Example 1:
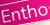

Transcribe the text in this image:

Entho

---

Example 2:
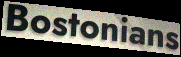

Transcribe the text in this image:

Bostonians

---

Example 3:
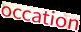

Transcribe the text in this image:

occation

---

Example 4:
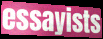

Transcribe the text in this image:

essayists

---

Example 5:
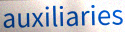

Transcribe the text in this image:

auxiliaries